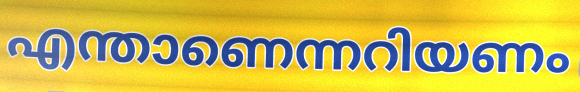
എന്താണെന്നറിയണം